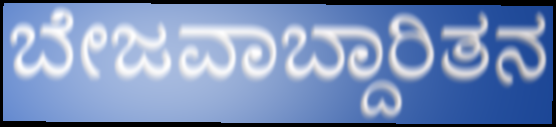
ಬೇಜವಾಬ್ದಾರಿತನ